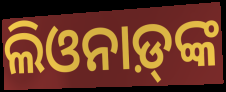
ଲିଓନାଡ଼୍‌ଙ୍କ